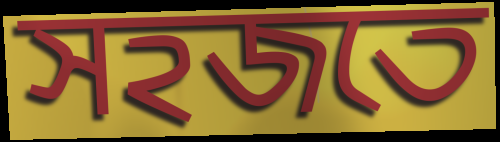
সহজতে